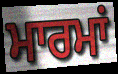
ਮਾਰਮਾਂ